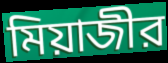
মিয়াজীর